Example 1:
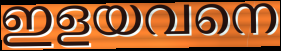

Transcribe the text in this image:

ഇളയവനെ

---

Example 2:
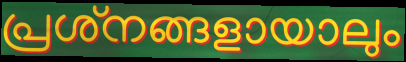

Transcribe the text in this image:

പ്രശ്‌നങ്ങളായാലും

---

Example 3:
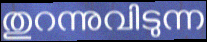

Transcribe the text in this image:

തുറന്നുവിടുന്ന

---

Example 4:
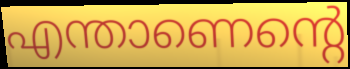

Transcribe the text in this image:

എന്താണെന്റെ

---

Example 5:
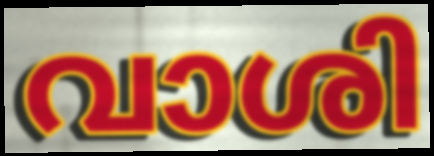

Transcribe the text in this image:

വാശി